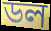
ডল